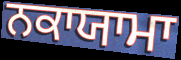
ਨਕਾਯਾਮਾ